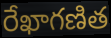
రేఖాగణిత